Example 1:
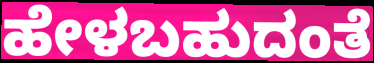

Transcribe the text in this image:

ಹೇಳಬಹುದಂತೆ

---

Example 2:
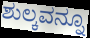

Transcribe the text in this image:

ಶುಲ್ಕವನ್ನೂ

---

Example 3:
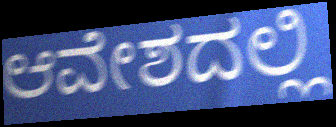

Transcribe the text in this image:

ಆವೇಶದಲ್ಲಿ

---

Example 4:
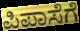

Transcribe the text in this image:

ಪಿಪಾಸೆಗೆ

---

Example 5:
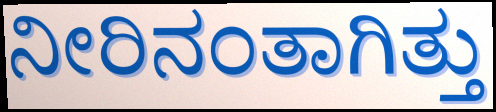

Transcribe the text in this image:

ನೀರಿನಂತಾಗಿತ್ತು